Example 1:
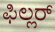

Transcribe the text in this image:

ಫಿಲ್ಲರ್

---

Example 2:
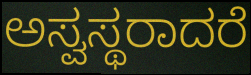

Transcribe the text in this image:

ಅಸ್ವಸ್ಥರಾದರೆ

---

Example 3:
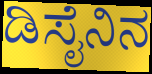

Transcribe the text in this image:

ಡಿಸೈನಿನ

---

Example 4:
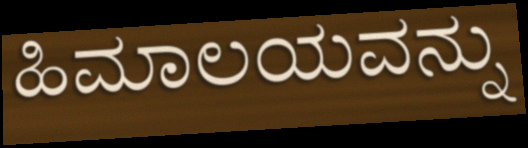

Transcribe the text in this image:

ಹಿಮಾಲಯವನ್ನು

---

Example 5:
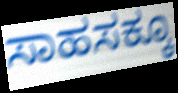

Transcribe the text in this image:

ಸಾಹಸಕ್ಕೂ